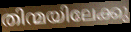
തിന്മയിലേക്കു